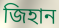
জিহান